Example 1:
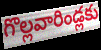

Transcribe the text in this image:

గొల్లవారిండ్లకు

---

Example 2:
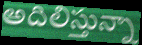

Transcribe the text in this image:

అదిలిస్తున్నా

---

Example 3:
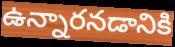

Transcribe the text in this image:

ఉన్నారనడానికి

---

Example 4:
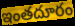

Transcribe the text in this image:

ఇంతదూరం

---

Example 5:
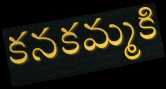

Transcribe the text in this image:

కనకమ్మకి